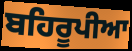
ਬਹਿਰੂਪੀਆ